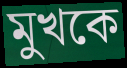
মুখকে